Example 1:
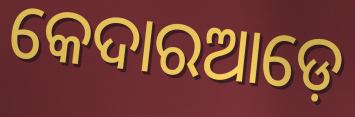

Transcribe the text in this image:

କେଦାରଆଡ଼େ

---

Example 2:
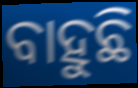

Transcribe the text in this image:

ବାହୁଛି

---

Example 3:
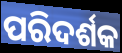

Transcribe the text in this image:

ପରିଦର୍ଶକ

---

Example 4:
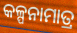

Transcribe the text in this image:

କଳ୍ପନାମାତ୍ର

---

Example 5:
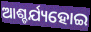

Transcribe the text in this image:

ଆଶ୍ଚର୍ଯ୍ୟହୋଇ